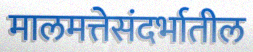
मालमत्तेसंदर्भातील